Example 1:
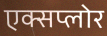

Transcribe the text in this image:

एक्सप्लोर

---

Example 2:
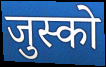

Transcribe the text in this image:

जुस्को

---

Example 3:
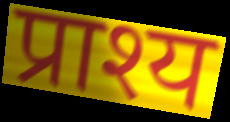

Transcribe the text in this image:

प्राश्य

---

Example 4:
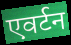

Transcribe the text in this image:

एवर्टन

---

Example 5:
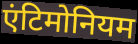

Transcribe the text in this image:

एंटिमोनियम